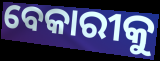
ବେକାରୀକୁ